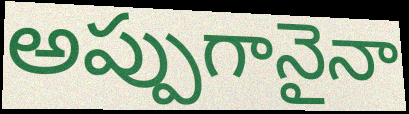
అప్పుగానైనా